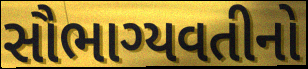
સૌભાગ્યવતીનો